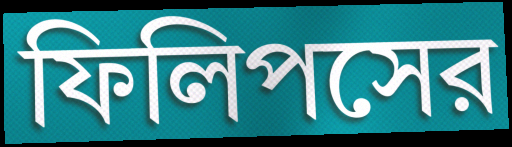
ফিলিপসের